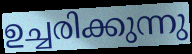
ഉച്ചരിക്കുന്നു